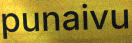
punaivu